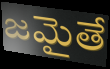
జమైతే